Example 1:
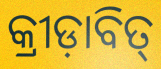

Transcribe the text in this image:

କ୍ରୀଡ଼ାବିତ୍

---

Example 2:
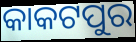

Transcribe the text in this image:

କାକଟପୁର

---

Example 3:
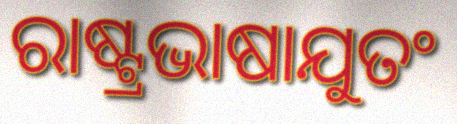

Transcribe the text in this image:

ରାଷ୍ଟ୍ରଭାଷାଯୁତଂ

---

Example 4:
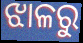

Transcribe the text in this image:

ଝାଳରୁ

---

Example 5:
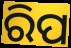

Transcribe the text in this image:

ରିପ